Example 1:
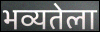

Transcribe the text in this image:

भव्यतेला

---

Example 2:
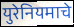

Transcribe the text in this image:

युरेनियमाचे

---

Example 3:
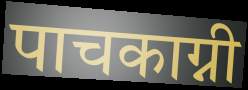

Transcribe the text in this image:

पाचकाग्नी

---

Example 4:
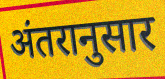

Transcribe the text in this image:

अंतरानुसार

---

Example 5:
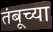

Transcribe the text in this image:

तंबूच्या